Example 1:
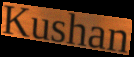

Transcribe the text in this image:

Kushan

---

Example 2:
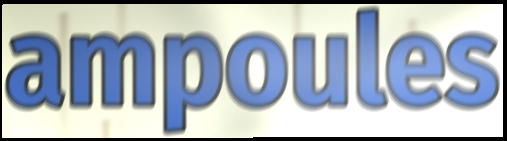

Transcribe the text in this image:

ampoules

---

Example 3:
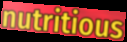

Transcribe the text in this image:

nutritious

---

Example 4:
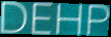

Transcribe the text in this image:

DEHP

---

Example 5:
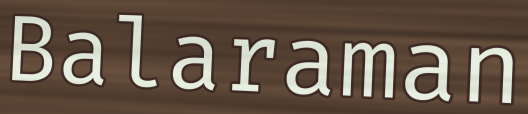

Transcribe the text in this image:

Balaraman